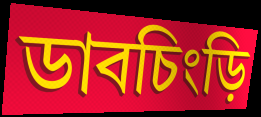
ডাবচিংড়ি